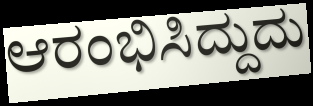
ಆರಂಭಿಸಿದ್ದುದು